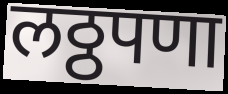
लठ्ठपणा